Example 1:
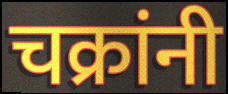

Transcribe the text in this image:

चक्रांनी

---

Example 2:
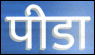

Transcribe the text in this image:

पीडा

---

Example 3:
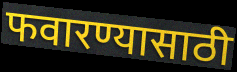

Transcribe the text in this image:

फवारण्यासाठी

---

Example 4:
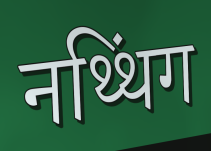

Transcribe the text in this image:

नथ्थिंग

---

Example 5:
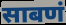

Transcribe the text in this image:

साबणं